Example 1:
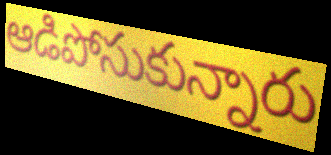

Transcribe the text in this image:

ఆడిపోసుకున్నారు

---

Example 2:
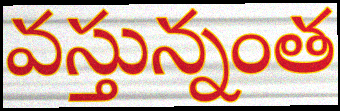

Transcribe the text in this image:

వస్తున్నంత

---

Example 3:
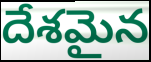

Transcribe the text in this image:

దేశమైన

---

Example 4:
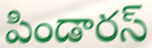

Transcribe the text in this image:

పిండారస్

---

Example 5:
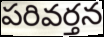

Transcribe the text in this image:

పరివర్తన